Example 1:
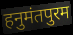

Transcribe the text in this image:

हनुमंतपुरम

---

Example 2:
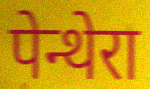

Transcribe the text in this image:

पेन्थेरा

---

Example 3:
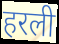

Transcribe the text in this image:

हरली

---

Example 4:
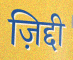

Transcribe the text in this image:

ज़िद्दी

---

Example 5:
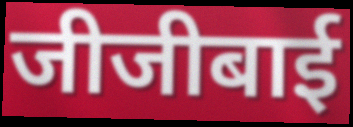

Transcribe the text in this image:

जीजीबाई